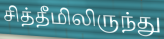
சித்தீமிலிருந்து